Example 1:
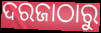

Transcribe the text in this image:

ଦରଜାଠାରୁ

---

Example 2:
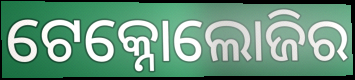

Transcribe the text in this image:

ଟେକ୍ନୋଲୋଜିର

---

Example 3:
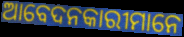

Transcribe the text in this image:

ଆବେଦନକାରୀମାନେ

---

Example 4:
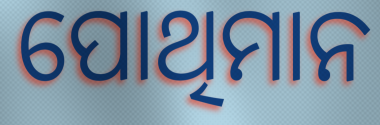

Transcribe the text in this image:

ପୋଥିମାନ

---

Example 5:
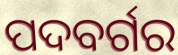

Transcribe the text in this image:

ପଦବର୍ଗର